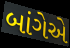
બાંગેએ